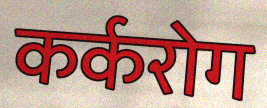
कर्करोग